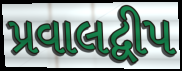
પ્રવાલદ્વીપ